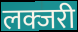
लक्‍जरी